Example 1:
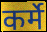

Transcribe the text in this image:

कर्मे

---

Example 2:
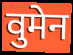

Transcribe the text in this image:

वुमेन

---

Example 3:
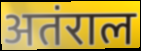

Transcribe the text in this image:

अतंराल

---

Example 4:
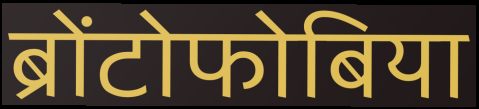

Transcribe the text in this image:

ब्रोंटोफोबिया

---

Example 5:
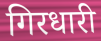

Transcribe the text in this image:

गिरधारी